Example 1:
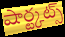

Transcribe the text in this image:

షార్ట్కట్స్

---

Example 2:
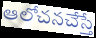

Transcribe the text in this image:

ఆలోచనచేస్తే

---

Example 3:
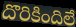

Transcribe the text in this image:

దొరికిందిలే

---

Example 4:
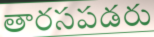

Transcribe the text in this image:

తారసపడరు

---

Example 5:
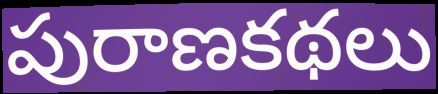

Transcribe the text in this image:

పురాణకథలు